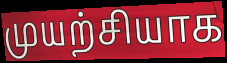
முயற்சியாக